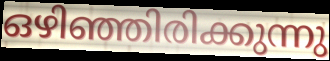
ഒഴിഞ്ഞിരിക്കുന്നു